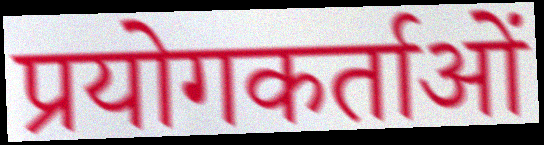
प्रयोगकर्ताओं